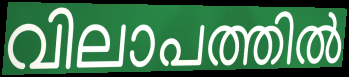
വിലാപത്തിൽ